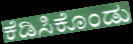
ಕೆಡಿಸಿಕೊಂಡು